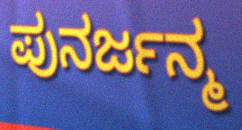
ಪುನರ್ಜನ್ಮ